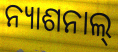
ନ୍ୟାଶନାଲ୍